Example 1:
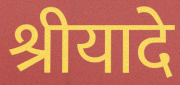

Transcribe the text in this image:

श्रीयादे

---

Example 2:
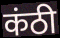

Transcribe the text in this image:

कंठी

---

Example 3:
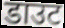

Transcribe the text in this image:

डाउट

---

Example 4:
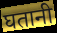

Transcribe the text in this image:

घतानी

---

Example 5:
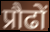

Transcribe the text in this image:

प्रौढों